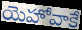
యెహోవాకే